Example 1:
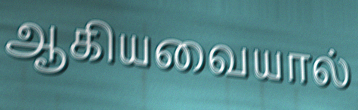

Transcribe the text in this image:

ஆகியவையால்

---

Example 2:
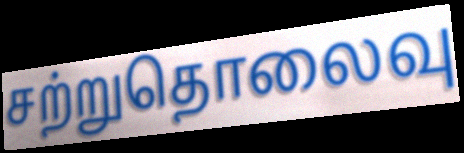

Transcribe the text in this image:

சற்றுதொலைவு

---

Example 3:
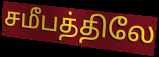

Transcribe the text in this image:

சமீபத்திலே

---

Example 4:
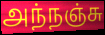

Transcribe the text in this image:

அந்நஞ்சு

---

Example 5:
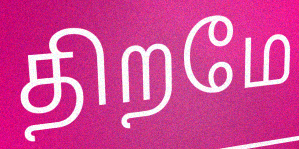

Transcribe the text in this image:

திறமே